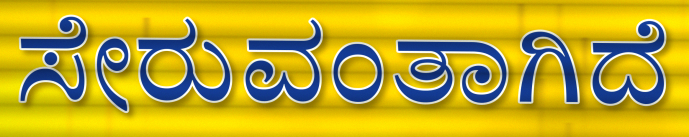
ಸೇರುವಂತಾಗಿದೆ